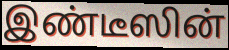
இண்டீஸின்